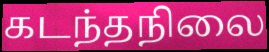
கடந்தநிலை